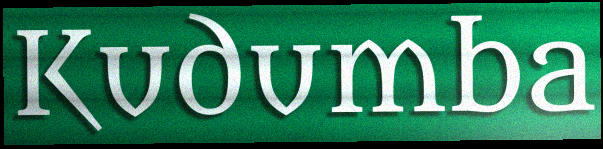
Kudumba